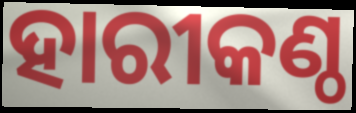
ହାରୀକଣ୍ଠ